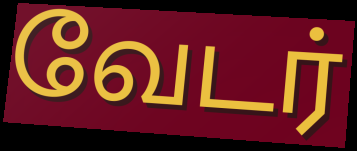
வேடர்